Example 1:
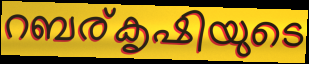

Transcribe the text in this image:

റബര്കൃഷിയുടെ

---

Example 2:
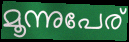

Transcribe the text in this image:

മൂന്നുപേര്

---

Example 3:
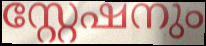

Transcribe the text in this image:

സ്റ്റേഷനും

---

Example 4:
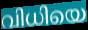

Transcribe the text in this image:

വിധിയെ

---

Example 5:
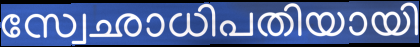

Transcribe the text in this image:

സ്വേഛാധിപതിയായി